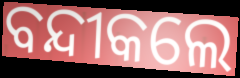
ବନ୍ଦୀକଲେ